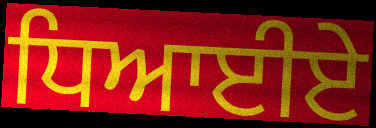
ਧਿਆਈਏ